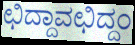
ಛಿದ್ದಾವಛಿದ್ದಂ